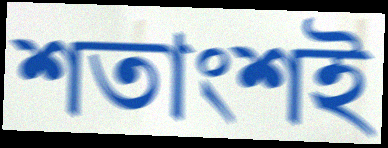
শতাংশই